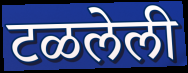
टळलेली